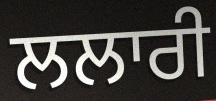
ਲਲਾਰੀ